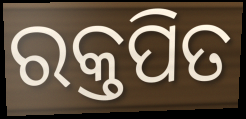
ରକ୍ତପିତ